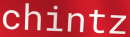
chintz